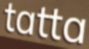
tatta